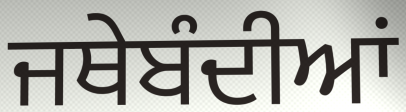
ਜਥੇਬੰਦੀਆਂ